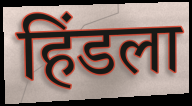
हिंडला